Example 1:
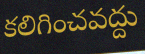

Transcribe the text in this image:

కలిగించవద్దు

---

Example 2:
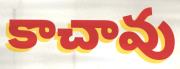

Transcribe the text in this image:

కాచావు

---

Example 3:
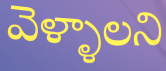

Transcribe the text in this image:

వెళ్ళాలని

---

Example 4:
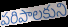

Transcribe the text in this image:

పరిపాలకుని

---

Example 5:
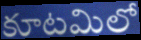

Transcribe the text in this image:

కూటమిలో